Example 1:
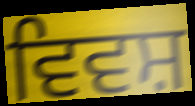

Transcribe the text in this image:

ਵਿਵਸ਼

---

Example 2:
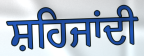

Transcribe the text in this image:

ਸ਼ਹਿਜਾਂਦੀ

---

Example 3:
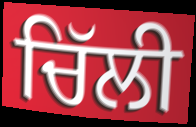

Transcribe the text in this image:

ਚਿੱਲੀ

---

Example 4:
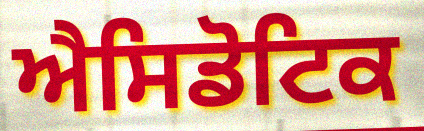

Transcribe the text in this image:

ਐਸਿਡੋਟਿਕ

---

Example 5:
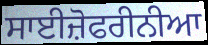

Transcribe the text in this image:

ਸਾਈਜ਼ੋਫਰੀਨੀਆ